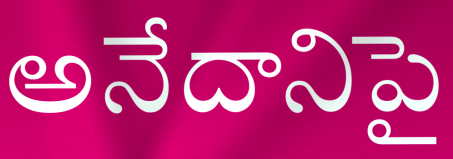
అనేదానిపై